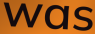
was